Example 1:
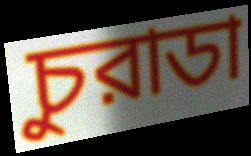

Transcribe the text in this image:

চুরাডা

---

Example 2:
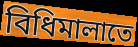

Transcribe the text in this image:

বিধিমালাতে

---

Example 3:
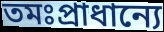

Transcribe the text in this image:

তমঃপ্রাধান্যে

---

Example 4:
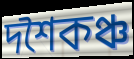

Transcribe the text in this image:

দশৈকঞ্চ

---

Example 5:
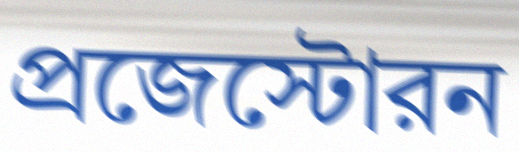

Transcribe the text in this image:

প্রজেস্টোরন